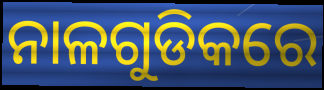
ନାଳଗୁଡିକରେ